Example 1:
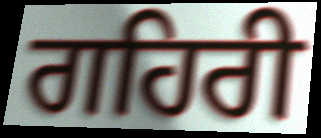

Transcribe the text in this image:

ਗਹਿਰੀ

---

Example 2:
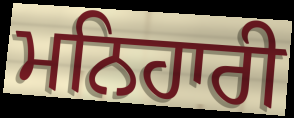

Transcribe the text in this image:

ਮਨਿਹਾਰੀ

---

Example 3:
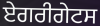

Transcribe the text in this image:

ਏਗਰੀਗੇਟਸ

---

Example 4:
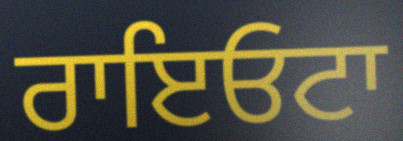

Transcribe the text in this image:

ਰਾਇਓਟਾ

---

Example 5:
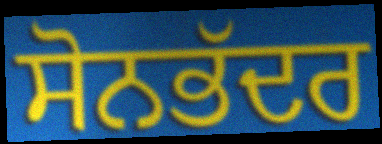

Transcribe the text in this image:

ਸੋਨਭੱਦਰ